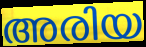
അരിയ